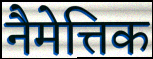
नैमेत्तिक